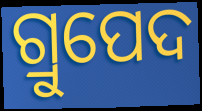
ଗ୍ରୁପେଦ